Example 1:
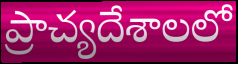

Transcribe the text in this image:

ప్రాచ్యదేశాలలో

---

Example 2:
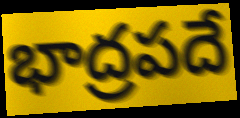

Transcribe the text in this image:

భాద్రపదే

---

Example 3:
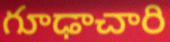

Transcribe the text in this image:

గూఢాచారి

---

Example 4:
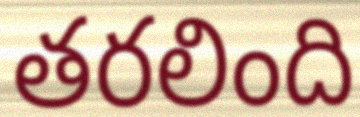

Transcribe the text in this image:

తరలింది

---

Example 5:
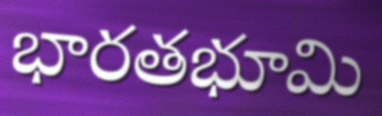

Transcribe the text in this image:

భారతభూమి